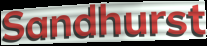
Sandhurst